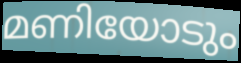
മണിയോടും